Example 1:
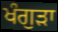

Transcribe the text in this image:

ਖੰਗੁੜਾ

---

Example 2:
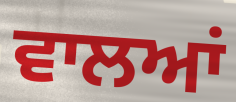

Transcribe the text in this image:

ਵਾਲਆਂ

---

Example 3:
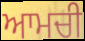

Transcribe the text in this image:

ਆਮਚੀ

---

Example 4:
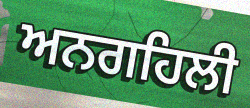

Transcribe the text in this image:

ਅਨਗਹਿਲੀ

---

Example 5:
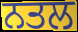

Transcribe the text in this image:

ਨਤਲ